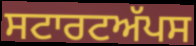
ਸਟਾਰਟਅੱਪਸ